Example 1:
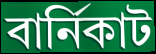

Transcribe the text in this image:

বার্নিকাট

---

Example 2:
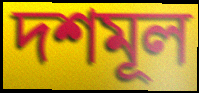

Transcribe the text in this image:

দশমূল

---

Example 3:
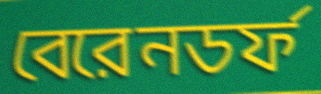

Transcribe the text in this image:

বেরেনডর্ফ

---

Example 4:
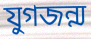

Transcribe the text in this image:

যুগজন্ম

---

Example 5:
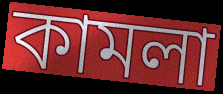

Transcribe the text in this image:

কামলা